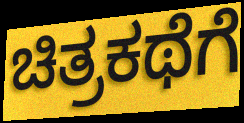
ಚಿತ್ರಕಥೆಗೆ